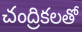
చంద్రికలతో